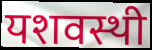
यशवस्थी